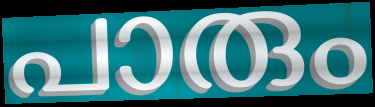
പാരും